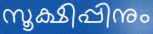
സൂക്ഷിപ്പിനും